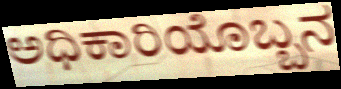
ಅಧಿಕಾರಿಯೊಬ್ಬನ